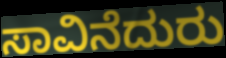
ಸಾವಿನೆದುರು